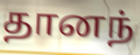
தானந்